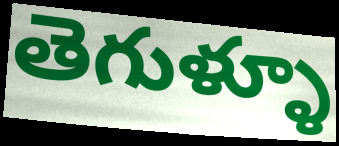
తెగుళ్ళూ